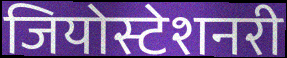
जियोस्टेशनरी